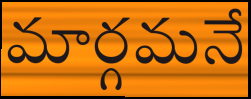
మార్గమనే